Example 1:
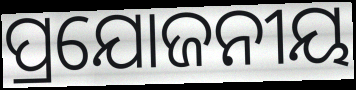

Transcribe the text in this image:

ପ୍ରଯୋଜନୀୟ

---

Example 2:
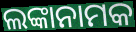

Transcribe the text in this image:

ଲଙ୍କାନାମକ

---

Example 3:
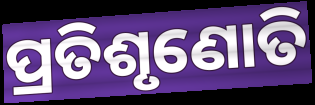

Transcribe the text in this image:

ପ୍ରତିଶୃଣୋତି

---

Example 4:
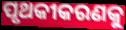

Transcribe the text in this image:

ପୃଥକୀକରଣକୁ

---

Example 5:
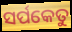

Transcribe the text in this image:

ସର୍ପକେତୁ